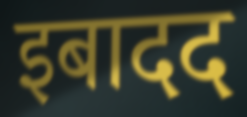
इबादद